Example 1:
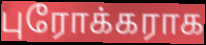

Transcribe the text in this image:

புரோக்கராக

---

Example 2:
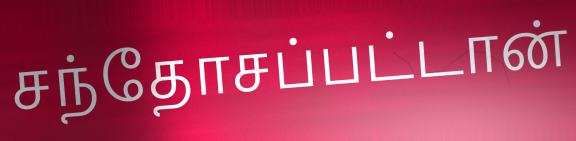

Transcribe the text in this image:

சந்தோசப்பட்டான்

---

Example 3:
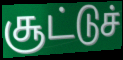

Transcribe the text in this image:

சூட்டுச்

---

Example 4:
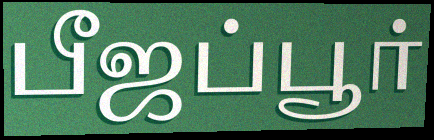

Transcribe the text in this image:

பீஜப்பூர்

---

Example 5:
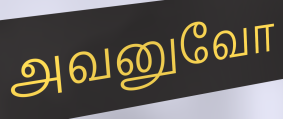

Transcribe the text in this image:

அவனுவோ